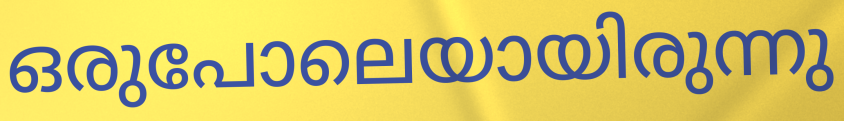
ഒരുപോലെയായിരുന്നു